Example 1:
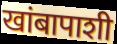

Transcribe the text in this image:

खांबापाशी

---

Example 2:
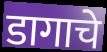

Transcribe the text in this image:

डागाचे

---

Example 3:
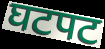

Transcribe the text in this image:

घटपट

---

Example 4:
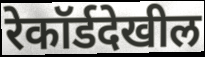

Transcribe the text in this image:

रेकॉर्डदेखील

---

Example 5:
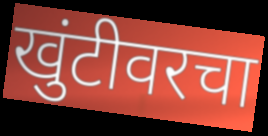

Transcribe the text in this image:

खुंटीवरचा